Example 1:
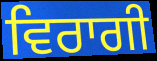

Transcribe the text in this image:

ਵਿਰਾਗੀ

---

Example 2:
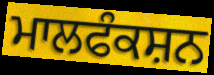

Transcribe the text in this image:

ਮਾਲਫੰਕਸ਼ਨ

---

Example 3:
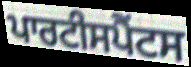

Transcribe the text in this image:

ਪਾਰਟੀਸਪੈਂਟਸ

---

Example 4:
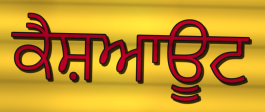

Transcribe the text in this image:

ਕੈਸ਼ਆਊਟ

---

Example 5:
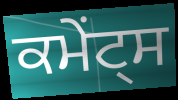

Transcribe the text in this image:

ਕਮੇਂਟ੍ਸ